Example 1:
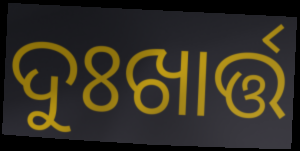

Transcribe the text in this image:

ଦୁଃଖାର୍ତ୍ତ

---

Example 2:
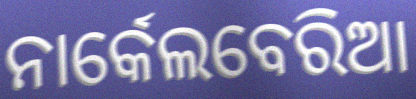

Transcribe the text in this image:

ନାର୍କେଲବେରିଆ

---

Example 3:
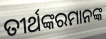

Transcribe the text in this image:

ତୀର୍ଥଙ୍କରମାନଙ୍କ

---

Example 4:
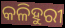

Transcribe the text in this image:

କଳିହୁରୀ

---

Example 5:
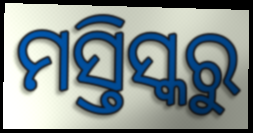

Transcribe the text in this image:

ମସ୍ତିସ୍କରୁ